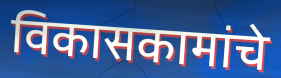
विकासकामांचे